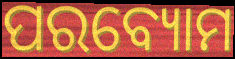
ପରବ୍ୟୋମ